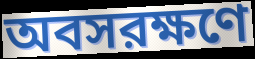
অবসরক্ষণে